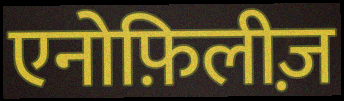
एनोफ़िलीज़